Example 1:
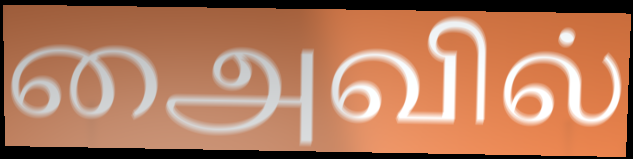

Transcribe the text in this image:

அைவில்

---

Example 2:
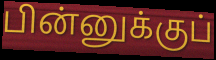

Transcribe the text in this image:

பின்னுக்குப்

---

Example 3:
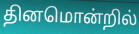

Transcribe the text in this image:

தினமொன்றில்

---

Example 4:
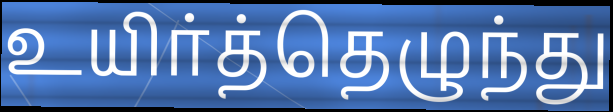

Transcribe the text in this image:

உயிர்த்தெழுந்து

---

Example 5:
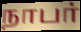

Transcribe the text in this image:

நாபர்